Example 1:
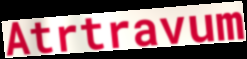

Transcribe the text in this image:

Atrtravum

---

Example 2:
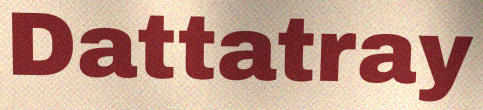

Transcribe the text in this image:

Dattatray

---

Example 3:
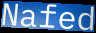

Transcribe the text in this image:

Nafed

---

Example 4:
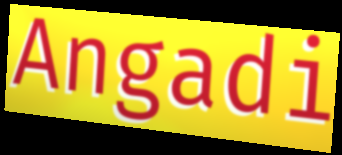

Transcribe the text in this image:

Angadi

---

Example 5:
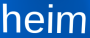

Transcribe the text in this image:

heim